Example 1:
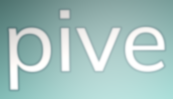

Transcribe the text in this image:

pive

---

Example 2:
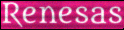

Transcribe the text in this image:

Renesas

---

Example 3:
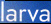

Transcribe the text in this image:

larva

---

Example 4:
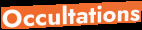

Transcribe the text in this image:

Occultations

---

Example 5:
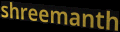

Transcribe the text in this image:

shreemanth